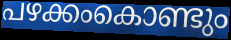
പഴക്കംകൊണ്ടും